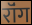
रॉंग